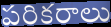
పరికరాలు